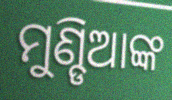
ମୁଣ୍ଡିଆଙ୍କ